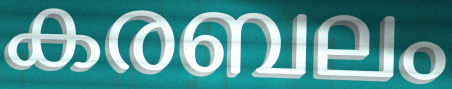
കരബലം